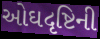
ઓઘદૃષ્ટિની